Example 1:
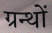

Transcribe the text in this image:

ग्रन्थों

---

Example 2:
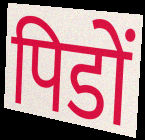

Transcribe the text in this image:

पिडों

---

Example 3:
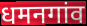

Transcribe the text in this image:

धमनगांव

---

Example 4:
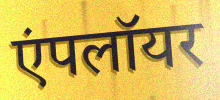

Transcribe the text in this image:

एंपलॉयर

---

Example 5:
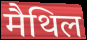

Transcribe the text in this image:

मैथिल